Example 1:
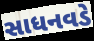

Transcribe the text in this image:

સાધનવડે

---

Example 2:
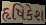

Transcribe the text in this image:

હૃષિકેશ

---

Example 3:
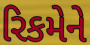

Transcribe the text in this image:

રિકમેને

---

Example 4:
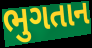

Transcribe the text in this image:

ભુગતાન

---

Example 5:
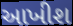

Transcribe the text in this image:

આખીશ